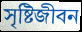
সৃষ্টিজীবন